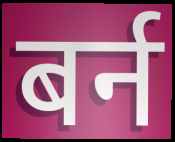
बर्न